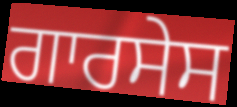
ਗਾਰਸੇਸ